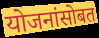
योजनांसोबत